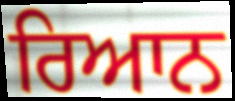
ਰਿਆਨ